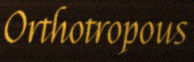
Orthotropous